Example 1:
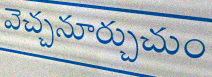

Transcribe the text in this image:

వెచ్చనూర్చుచుం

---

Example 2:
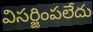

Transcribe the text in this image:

విసర్జింపలేదు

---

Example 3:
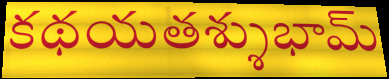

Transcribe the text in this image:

కథయతశ్శుభామ్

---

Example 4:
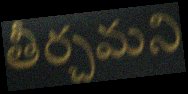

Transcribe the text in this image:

తీర్చమని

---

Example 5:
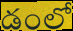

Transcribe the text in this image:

డంలో